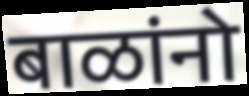
बाळांनो